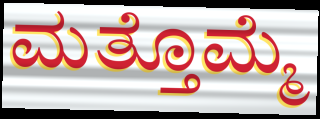
ಮತ್ತೊಮ್ಮೆ